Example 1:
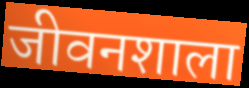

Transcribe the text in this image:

जीवनशाला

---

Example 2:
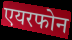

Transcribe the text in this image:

एयरफोन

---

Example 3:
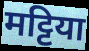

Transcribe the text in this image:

मट्टिया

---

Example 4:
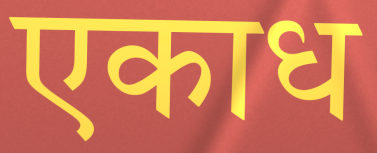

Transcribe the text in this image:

एकाध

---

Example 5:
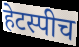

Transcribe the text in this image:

हेटस्पीच